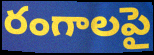
రంగాలపై